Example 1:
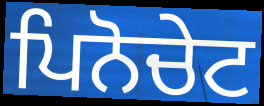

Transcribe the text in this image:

ਪਿਨੋਚੇਟ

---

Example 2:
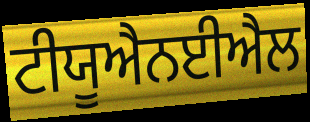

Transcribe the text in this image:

ਟੀਯੂਐਨਈਐਲ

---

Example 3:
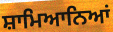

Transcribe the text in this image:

ਸ਼ਾਮਿਆਨਿਆਂ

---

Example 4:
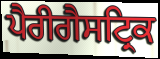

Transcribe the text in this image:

ਪੈਰੀਗੈਸਟ੍ਰਿਕ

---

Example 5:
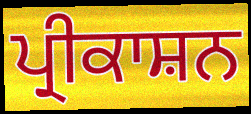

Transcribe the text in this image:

ਪ੍ਰੀਕਾਸ਼ਨ